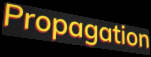
Propagation